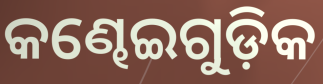
କଣ୍ଢେଇଗୁଡ଼ିକ